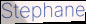
Stephane